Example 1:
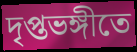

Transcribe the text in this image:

দৃপ্তভঙ্গীতে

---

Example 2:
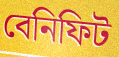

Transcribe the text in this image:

বেনিফিট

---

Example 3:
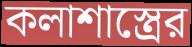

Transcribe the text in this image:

কলাশাস্ত্রের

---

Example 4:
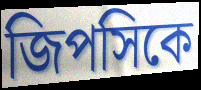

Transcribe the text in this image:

জিপসিকে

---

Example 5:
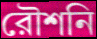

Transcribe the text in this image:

রৌশনি